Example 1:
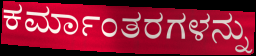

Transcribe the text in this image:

ಕರ್ಮಾಂತರಗಳನ್ನು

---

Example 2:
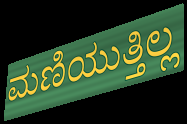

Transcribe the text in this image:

ಮಣಿಯುತ್ತಿಲ್ಲ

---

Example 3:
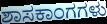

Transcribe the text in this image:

ಶಾಸಕಾಂಗಗಳು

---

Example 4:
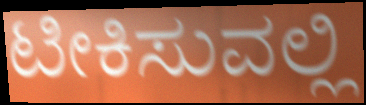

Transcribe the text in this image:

ಟೀಕಿಸುವಲ್ಲಿ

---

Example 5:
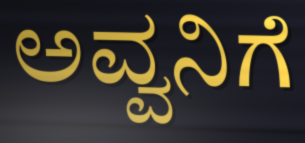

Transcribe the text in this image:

ಅವ್ವನಿಗೆ